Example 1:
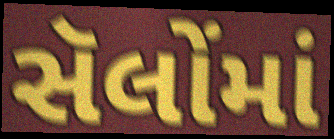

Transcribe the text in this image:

સૅલોંમાં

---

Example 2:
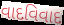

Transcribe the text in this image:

વાદવિવાદ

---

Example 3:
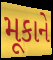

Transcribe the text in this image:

મૂકાને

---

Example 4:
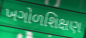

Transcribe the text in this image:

ખગોળશિક્ષણ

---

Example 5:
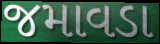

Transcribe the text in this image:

જમાવડા